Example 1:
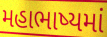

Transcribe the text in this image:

મહાભાષ્યમાં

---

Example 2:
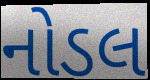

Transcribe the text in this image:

નોડલ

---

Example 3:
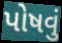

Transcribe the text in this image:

પોષવું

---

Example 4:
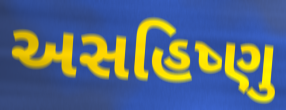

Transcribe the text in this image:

અસહિષ્ણુ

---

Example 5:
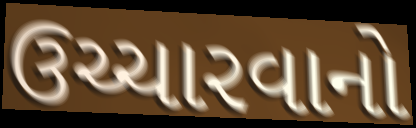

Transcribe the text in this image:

ઉચ્ચારવાનો